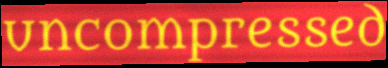
uncompressed